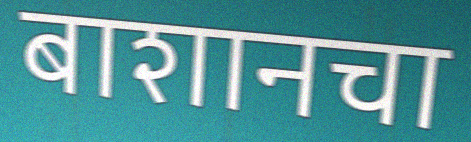
बाशानचा